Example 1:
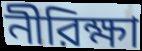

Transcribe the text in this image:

নীরিক্ষা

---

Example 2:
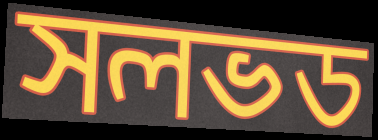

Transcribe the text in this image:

সলভড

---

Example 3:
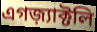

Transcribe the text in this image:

এগজ়্যাক্টলি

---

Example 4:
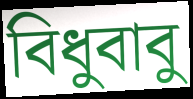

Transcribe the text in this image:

বিধুবাবু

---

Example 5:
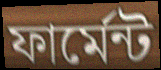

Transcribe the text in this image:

ফার্মেন্ট